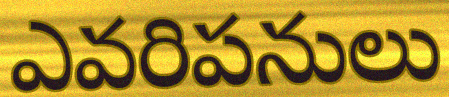
ఎవరిపనులు